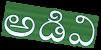
అడివి